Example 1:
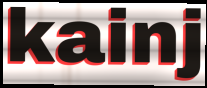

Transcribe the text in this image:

kainj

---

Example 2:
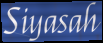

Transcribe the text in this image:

Siyasah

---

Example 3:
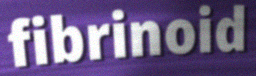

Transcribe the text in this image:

fibrinoid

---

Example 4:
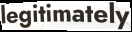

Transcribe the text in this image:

legitimately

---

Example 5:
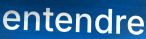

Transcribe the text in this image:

entendre